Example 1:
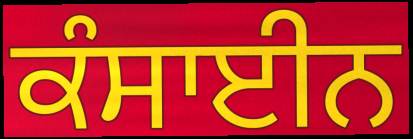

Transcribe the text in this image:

ਕੰਸਾਈਨ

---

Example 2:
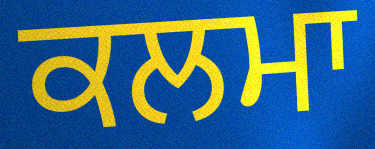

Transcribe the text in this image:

ਕਲਮਾ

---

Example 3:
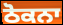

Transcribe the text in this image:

ਠੋਕਨਾ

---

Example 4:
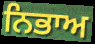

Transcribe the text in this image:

ਨਿਭਾਅ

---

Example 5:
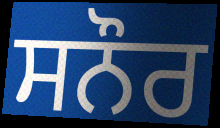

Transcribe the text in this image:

ਸਨੌਰ